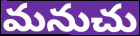
మనుచు